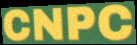
CNPC